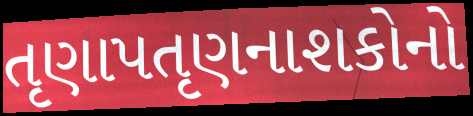
તૃણાપતૃણનાશકોનો